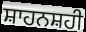
ਸ਼ਾਹਨਸ਼ਹੀ